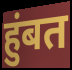
हुंबत